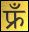
फ्रँ